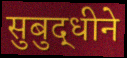
सुबुद्धीने